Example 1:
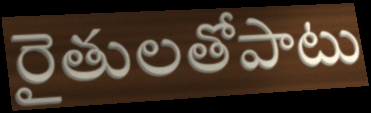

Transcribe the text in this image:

రైతులతోపాటు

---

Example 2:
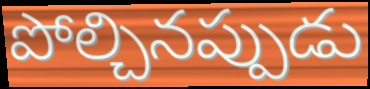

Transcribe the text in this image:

పోల్చినప్పుడు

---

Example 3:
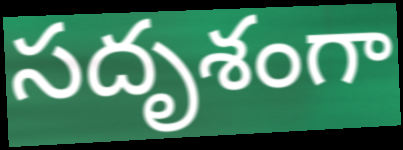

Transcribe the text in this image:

సదృశంగా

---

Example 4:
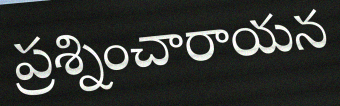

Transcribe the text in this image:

ప్రశ్నించారాయన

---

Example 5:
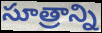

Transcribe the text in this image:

సూత్రాన్ని